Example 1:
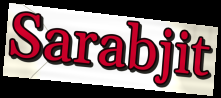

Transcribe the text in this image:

Sarabjit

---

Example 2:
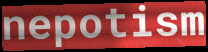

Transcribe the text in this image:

nepotism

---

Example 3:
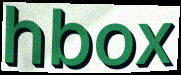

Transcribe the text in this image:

hbox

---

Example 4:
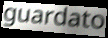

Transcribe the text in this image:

guardato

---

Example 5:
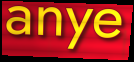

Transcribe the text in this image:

anye